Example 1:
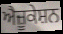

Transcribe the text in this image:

ਐਜ਼ੂਕੇਸ਼ਨ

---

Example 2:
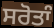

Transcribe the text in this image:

ਸਰੋਤਾੰ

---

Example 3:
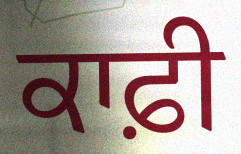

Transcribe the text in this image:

ਕਾਫ਼ੀ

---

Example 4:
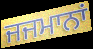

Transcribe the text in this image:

ਜਜਮਾਨਾਂ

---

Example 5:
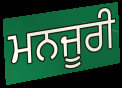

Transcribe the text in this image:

ਮਨਜੂਰੀ